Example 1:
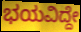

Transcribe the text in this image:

ಭಯವಿದ್ದೇ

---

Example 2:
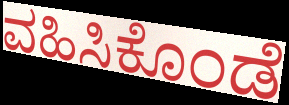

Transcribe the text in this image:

ವಹಿಸಿಕೊಂಡೆ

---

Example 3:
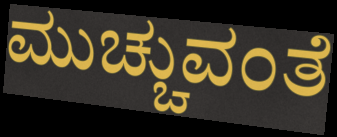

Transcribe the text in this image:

ಮುಚ್ಚುವಂತೆ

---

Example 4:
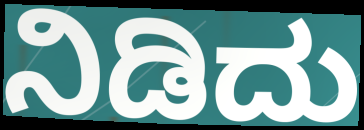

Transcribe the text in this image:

ನಿಡಿದು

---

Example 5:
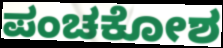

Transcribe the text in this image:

ಪಂಚಕೋಶ